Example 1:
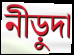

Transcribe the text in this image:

নীড়ুদা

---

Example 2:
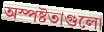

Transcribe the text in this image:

অস্পষ্টতাগুলো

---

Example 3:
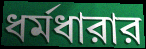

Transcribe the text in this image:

ধর্মধারার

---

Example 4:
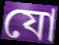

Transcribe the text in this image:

যো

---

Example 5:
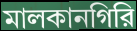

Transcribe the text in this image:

মালকানগিরি